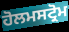
ਹੋਲਮਸਟ੍ਰੋਮ